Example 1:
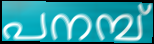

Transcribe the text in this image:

പനമ്പ്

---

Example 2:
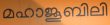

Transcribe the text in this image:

മഹാജൂബിലി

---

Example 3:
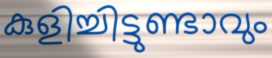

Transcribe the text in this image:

കുളിച്ചിട്ടുണ്ടാവും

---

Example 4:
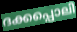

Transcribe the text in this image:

ദക്കപ്പൊലി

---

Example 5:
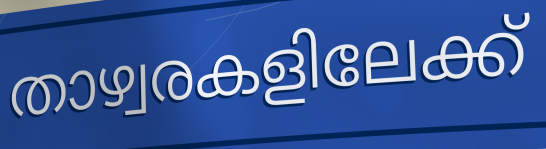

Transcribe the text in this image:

താഴ്വരകളിലേക്ക്